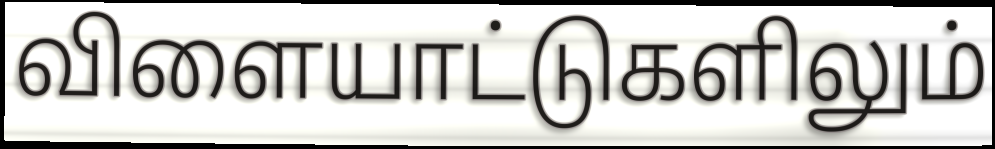
விளையாட்டுகளிலும்